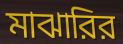
মাঝারির